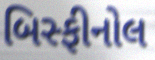
બિસ્ફીનોલ